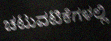
ಚಟುವಟಿಕೆಗಳಲ್ಲಿ